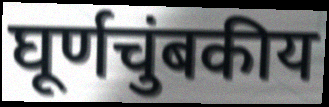
घूर्णचुंबकीय